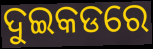
ଦୁଇକଡରେ